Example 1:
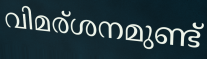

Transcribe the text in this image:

വിമര്ശനമുണ്ട്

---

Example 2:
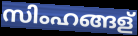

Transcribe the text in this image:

സിംഹങ്ങള്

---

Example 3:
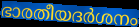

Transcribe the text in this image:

ഭാരതീയദർശനം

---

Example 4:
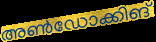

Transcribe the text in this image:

അൺഡോക്കിങ്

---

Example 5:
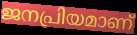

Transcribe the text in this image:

ജനപ്രിയമാണ്